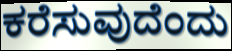
ಕರೆಸುವುದೆಂದು